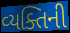
વ્‍યક્તિની